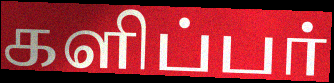
களிப்பர்